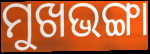
ମୁଖଭଙ୍ଗା